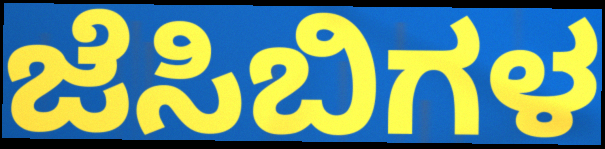
ಜೆಸಿಬಿಗಳ